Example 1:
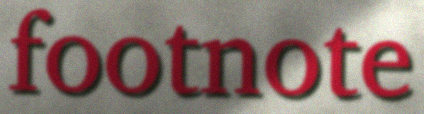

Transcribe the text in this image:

footnote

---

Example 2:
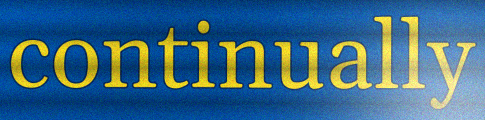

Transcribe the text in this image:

continually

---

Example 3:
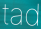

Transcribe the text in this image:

tad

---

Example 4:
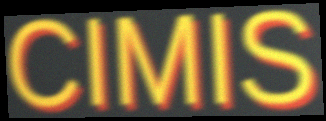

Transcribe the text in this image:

CIMIS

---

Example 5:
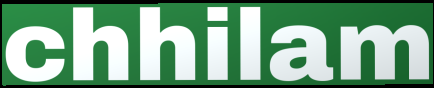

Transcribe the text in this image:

chhilam